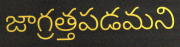
జాగ్రత్తపడమని